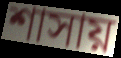
শাসায়